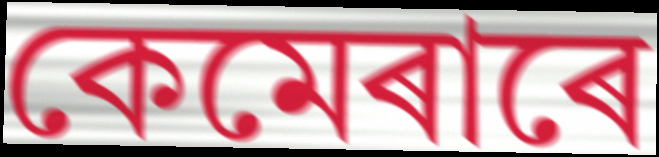
কেমেৰাৰে